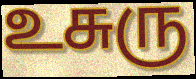
உசுரு